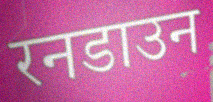
रनडाउन